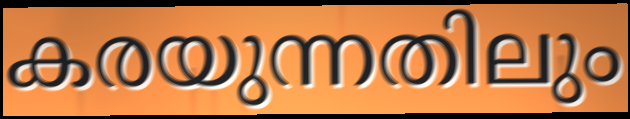
കരയുന്നതിലും